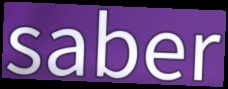
saber